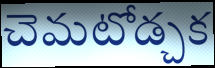
చెమటోడ్చక